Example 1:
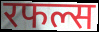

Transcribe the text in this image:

रफल्स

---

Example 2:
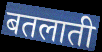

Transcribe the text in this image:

बतलाती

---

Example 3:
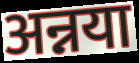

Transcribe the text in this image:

अन्नया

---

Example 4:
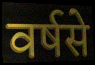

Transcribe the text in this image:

वर्षसे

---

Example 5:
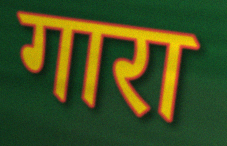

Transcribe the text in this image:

गारा